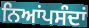
ਨਿਆਂਪਸੰਦਾਂ